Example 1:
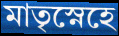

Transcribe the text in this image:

মাতৃস্নেহে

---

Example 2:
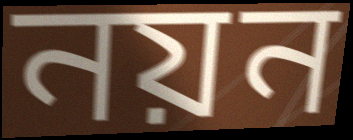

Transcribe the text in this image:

নয়ন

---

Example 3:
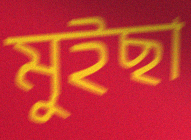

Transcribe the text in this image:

মুইছা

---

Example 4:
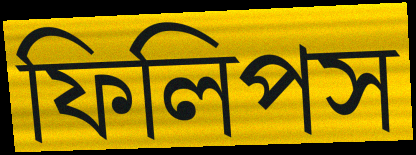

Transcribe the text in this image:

ফিলিপস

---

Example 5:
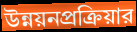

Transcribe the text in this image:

উন্নয়নপ্রক্রিয়ার